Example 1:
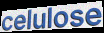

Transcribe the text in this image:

celulose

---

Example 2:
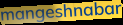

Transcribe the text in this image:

mangeshnabar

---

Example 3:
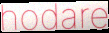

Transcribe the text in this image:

hodare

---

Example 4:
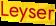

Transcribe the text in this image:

Leyser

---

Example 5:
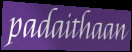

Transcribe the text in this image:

padaithaan